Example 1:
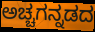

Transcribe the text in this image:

ಅಚ್ಚಗನ್ನಡದ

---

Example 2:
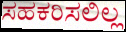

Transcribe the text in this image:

ಸಹಕರಿಸಲಿಲ್ಲ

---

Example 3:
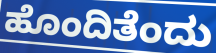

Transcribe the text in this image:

ಹೊಂದಿತೆಂದು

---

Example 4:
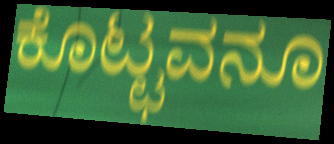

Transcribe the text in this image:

ಕೊಟ್ಟವನೂ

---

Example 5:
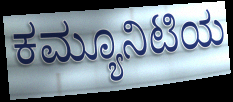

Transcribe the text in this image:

ಕಮ್ಯೂನಿಟಿಯ